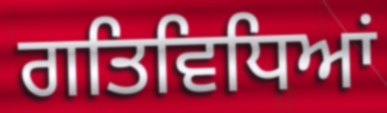
ਗਤਿਵਿਧਿਆਂ